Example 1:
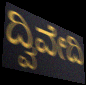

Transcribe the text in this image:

ದ್ವಿವೇದಿ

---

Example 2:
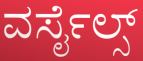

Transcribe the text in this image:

ವರ್ಸೈಲ್ಸ್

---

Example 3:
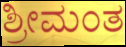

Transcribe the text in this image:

ಶ್ರೀಮಂತ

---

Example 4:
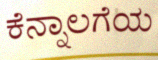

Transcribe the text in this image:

ಕೆನ್ನಾಲಗೆಯ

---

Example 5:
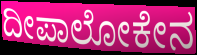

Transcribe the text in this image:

ದೀಪಾಲೋಕೇನ